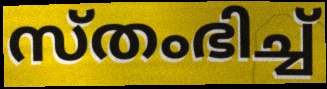
സ്തംഭിച്ച്